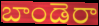
బాండెరా